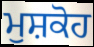
ਮੁਸ਼ਕੋਹ